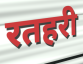
रतहरी